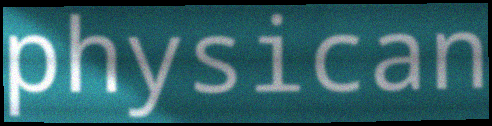
physican